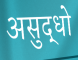
असुद्धो